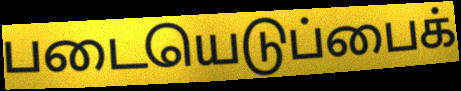
படையெடுப்பைக்